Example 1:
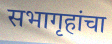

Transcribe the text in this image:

सभागृहांचा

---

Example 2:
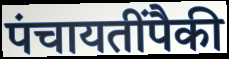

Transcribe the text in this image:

पंचायतींपैकी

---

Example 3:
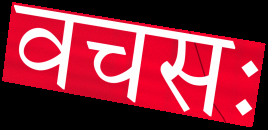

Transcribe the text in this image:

वचसः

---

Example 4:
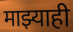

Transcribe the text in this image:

माझ्याही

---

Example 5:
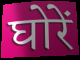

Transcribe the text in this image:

घोरें